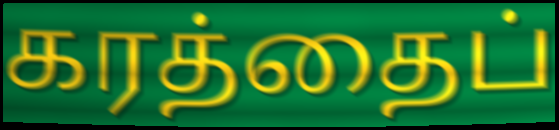
கரத்தைப்